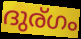
ദുര്ഗം